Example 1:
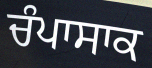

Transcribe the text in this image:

ਚੰਪਾਸਾਕ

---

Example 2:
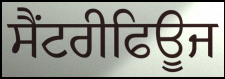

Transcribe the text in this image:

ਸੈਂਟਰੀਫਿਊਜ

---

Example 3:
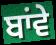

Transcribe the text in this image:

ਬਾਂਵੇ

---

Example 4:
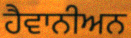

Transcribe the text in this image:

ਹੈਵਾਨੀਅਨ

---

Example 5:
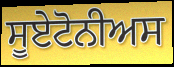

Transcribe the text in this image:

ਸੂਏਟੋਨੀਅਸ